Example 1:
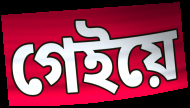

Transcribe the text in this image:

গেইয়ে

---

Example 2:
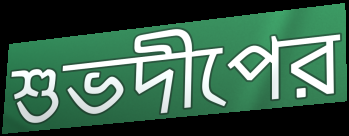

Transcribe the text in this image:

শুভদীপের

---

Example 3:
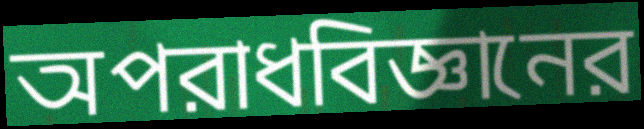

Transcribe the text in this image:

অপরাধবিজ্ঞানের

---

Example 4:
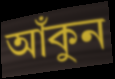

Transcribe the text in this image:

আঁকুন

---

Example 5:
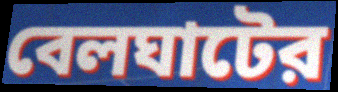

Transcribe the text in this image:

বেলঘাটের